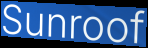
Sunroof